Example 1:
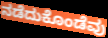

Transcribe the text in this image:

ನಡೆದುಕೊಂಡೆವು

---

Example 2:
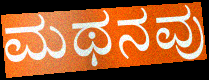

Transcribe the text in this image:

ಮಥನವು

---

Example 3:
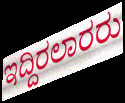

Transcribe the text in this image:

ಇದ್ದಿರಲಾರರು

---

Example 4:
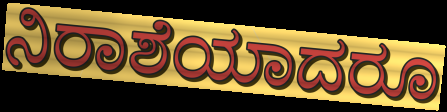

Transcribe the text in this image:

ನಿರಾಶೆಯಾದರೂ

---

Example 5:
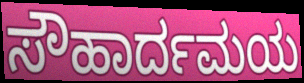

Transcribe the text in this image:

ಸೌಹಾರ್ದಮಯ